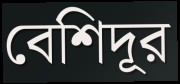
বেশিদূর